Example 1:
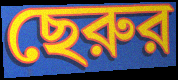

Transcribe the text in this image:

ছেরুর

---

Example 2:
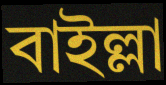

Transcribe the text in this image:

বাইল্লা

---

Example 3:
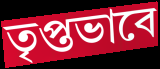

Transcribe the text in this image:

তৃপ্তভাবে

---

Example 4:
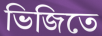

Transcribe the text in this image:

ভিজিতে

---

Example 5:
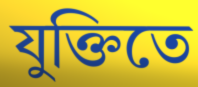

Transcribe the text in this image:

যুক্তিতে